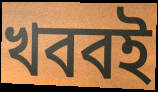
খববই